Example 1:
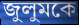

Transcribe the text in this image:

জুলুমকে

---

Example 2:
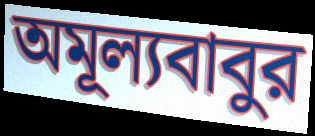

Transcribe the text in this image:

অমূল্যবাবুর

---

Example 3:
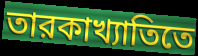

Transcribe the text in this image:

তারকাখ্যাতিতে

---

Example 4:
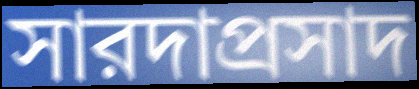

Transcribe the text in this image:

সারদাপ্রসাদ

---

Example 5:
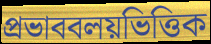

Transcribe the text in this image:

প্রভাববলয়ভিত্তিক